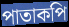
পাতাকপি